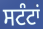
ਸਟੰਟਾਂ